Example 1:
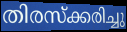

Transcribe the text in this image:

തിരസ്ക്കരിച്ചു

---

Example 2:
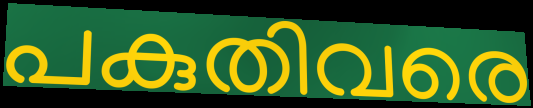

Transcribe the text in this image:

പകുതിവരെ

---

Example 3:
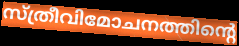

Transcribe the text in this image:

സ്ത്രീവിമോചനത്തിന്റെ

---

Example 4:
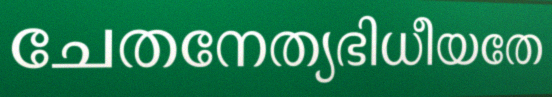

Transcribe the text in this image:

ചേതനേത്യഭിധീയതേ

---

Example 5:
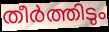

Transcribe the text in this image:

തീർത്തിടും